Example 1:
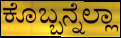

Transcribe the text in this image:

ಕೊಬ್ಬನ್ನೆಲ್ಲಾ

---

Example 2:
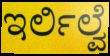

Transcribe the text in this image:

ಇರ್ಲಿಲ್ವೆ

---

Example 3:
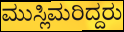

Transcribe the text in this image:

ಮುಸ್ಲಿಮರಿದ್ದರು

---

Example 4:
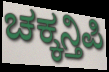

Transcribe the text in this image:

ಚಕ್ಕನ್ತಿಪಿ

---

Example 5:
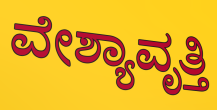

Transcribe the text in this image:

ವೇಶ್ಯಾವೃತ್ತಿ